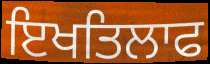
ਇਖਤਿਲਾਫ